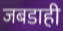
जबडाही